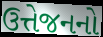
ઉત્તેજનનો